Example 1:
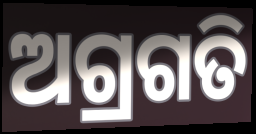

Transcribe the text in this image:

ଅଗ୍ରଗତି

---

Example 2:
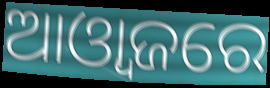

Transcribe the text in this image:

ଆଓ୍ୱାଜରେ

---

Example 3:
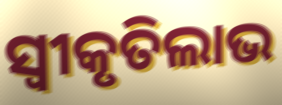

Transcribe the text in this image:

ସ୍ଵୀକୃତିଲାଭ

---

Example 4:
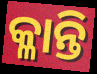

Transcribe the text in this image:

କ୍ଳାନ୍ତି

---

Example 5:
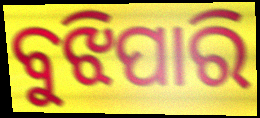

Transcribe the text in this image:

ବୁଝିପାରି